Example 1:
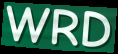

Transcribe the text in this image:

WRD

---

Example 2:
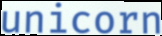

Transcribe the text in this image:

unicorn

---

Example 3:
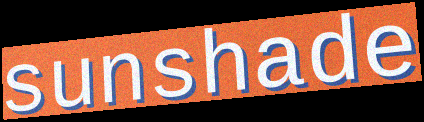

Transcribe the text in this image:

sunshade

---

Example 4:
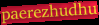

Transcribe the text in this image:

paerezhudhu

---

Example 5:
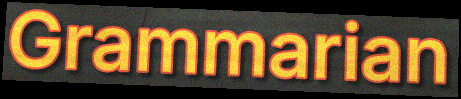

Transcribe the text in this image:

Grammarian